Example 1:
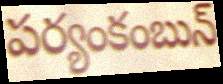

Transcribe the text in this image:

పర్యంకంబున్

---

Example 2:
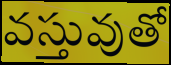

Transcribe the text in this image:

వస్తువుతో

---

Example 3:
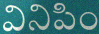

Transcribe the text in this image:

వినిపిం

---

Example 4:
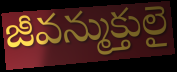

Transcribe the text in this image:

జీవన్ముక్తులై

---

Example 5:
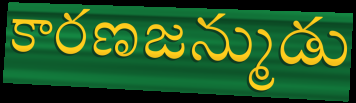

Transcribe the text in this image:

కారణజన్ముడు